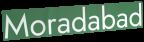
Moradabad